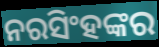
ନରସିଂହଙ୍କର